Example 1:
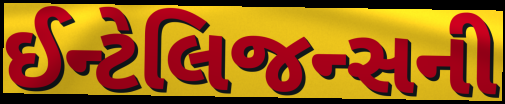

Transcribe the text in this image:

ઈન્ટેલિજન્સની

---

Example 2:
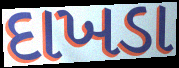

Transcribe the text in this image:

દાખડા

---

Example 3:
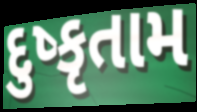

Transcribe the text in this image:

દુષ્કૃતામ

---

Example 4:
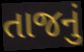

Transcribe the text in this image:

તાજનું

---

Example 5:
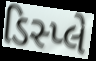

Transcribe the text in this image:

ડિસ્પ્લે